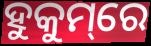
ହୁକୁମ୍‌ରେ